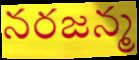
నరజన్మ